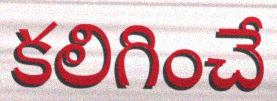
కలిగించే